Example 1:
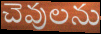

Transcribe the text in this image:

చెవులను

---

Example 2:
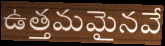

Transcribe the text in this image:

ఉత్తమమైనవే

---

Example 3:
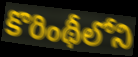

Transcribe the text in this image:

కొరింథీలోని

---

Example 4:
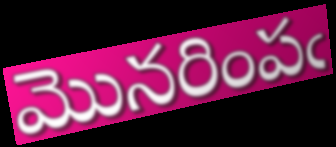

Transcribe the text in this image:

మొనరింపఁ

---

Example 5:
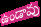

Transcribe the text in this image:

ఉండావు